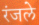
रंजले